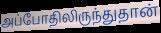
அப்போதிலிருந்துதான்